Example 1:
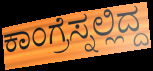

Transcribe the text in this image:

ಕಾಂಗ್ರೆಸ್ನಲ್ಲಿದ್ದ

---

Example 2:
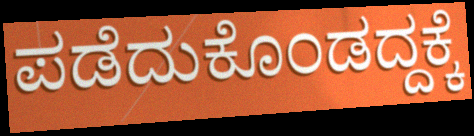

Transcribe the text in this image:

ಪಡೆದುಕೊಂಡದ್ದಕ್ಕೆ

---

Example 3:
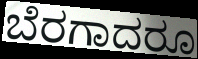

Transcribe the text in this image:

ಬೆರಗಾದರೂ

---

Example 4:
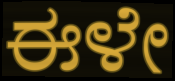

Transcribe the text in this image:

ಈಳೇ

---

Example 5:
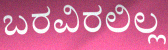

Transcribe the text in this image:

ಬರವಿರಲಿಲ್ಲ